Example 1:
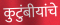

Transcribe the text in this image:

कुटुंबीयांचे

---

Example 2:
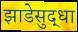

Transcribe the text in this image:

झाडेसुद्धा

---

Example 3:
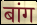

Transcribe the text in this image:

बांग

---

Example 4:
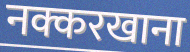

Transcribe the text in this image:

नक्करखाना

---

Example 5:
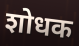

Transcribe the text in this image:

शोधक